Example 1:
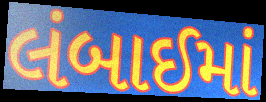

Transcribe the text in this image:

લંબાઈમાં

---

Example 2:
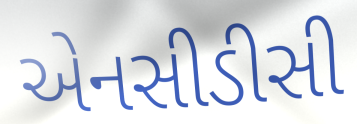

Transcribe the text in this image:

એનસીડીસી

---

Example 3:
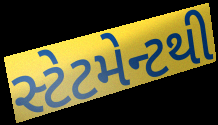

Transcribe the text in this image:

સ્ટેટમેન્ટથી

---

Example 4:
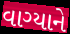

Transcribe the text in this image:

વાગ્યાને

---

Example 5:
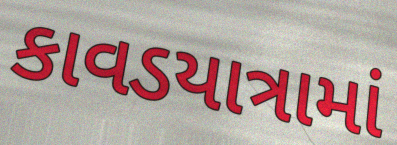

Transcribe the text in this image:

કાવડયાત્રામાં